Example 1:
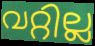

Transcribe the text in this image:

വറ്റില്ല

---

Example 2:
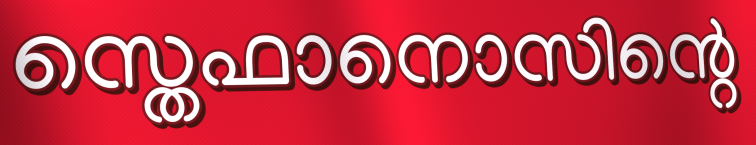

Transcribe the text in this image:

സ്തെഫാനൊസിന്റെ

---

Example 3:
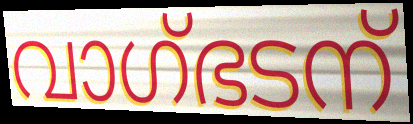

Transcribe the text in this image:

വാഗ്ഭടന്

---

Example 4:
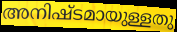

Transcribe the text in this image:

അനിഷ്ടമായുള്ളതു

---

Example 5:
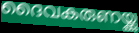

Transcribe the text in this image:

ദൈവകരുണയ്ക്കു